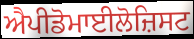
ਐਪੀਡੋਮਾਈਲੋਜ਼ਿਸਟ